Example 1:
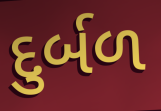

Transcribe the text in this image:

દુર્બળ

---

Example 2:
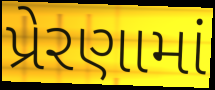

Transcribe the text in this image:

પ્રેરણામાં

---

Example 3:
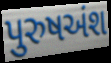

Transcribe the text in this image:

પુરુષઅંશ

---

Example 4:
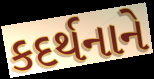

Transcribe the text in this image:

કદર્થનાને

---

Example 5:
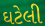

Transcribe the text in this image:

ઘટેલી